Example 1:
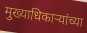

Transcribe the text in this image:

मुख्याधिकाऱ्यांच्या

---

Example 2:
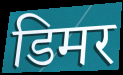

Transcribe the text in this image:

डिमर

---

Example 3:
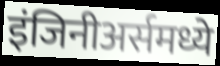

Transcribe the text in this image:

इंजिनीअर्समध्ये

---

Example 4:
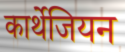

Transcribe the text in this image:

कार्थेजियन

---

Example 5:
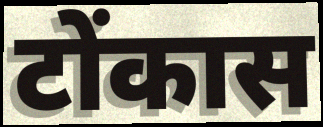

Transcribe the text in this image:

टोंकास